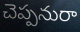
చెప్పనురా